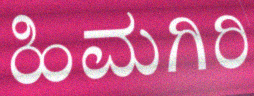
ಹಿಮಗಿರಿ